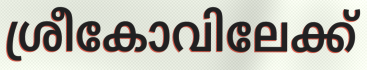
ശ്രീകോവിലേക്ക്